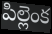
పిల్లెంక